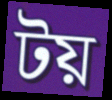
টয়